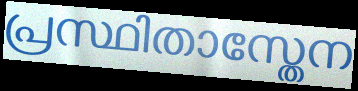
പ്രസ്ഥിതാസ്തേന